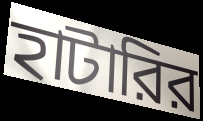
হাটারির